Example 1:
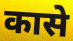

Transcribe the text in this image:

कासे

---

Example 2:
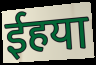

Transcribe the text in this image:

ईहया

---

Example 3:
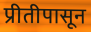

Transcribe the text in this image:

प्रीतीपासून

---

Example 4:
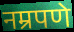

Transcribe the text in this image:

नम्रपणे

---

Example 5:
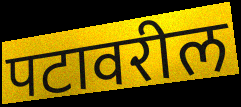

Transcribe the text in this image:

पटावरील